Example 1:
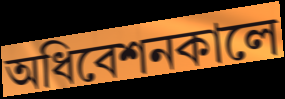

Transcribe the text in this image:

অধিবেশনকালে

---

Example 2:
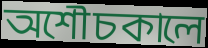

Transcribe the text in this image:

অশৌচকালে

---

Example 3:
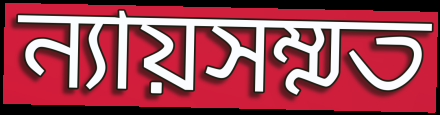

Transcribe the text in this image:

ন্যায়সম্মত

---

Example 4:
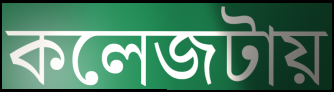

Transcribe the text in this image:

কলেজটায়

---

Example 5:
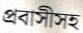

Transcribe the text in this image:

প্রবাসীসহ